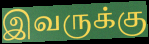
இவருக்கு